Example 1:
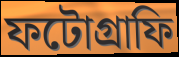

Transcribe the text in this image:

ফটোগ্ৰাফি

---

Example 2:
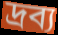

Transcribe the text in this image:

দ্ৰব্য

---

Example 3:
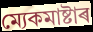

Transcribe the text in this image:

ম্যেকমাষ্টাৰ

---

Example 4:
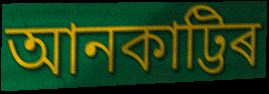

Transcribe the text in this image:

আনকাট্টিৰ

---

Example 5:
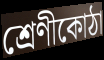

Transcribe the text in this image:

শ্ৰেণীকোঠা